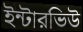
ইন্টারভিউ